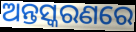
ଅନ୍ତସ୍କରଣରେ